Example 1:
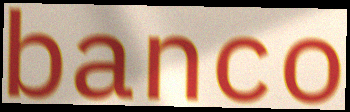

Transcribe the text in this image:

banco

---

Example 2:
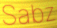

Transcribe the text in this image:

Sabz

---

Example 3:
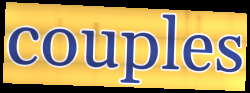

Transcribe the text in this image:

couples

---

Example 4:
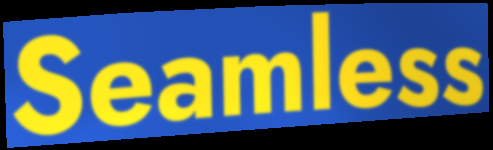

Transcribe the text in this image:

Seamless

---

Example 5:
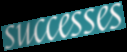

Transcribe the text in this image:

successes